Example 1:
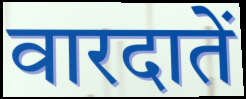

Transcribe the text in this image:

वारदातें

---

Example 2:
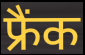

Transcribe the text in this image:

फ्रैंक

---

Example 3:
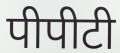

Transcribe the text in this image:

पीपीटी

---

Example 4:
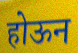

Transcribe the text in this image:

होऊन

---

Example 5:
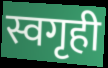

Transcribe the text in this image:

स्वगृही